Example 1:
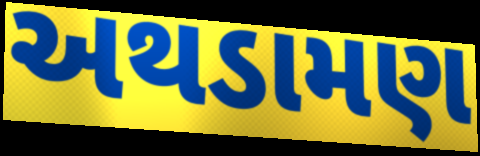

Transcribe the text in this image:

અથડામણ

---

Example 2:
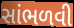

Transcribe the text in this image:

સાંભળવી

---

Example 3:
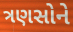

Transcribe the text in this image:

ત્રણસોને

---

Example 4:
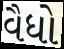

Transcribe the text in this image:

વૈધો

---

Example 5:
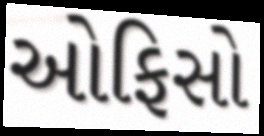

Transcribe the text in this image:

ઓફિસો